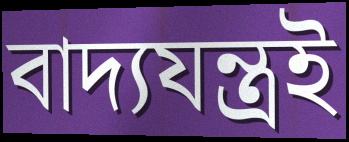
বাদ্যযন্ত্ৰই